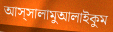
আস্সালামুআলাইকুম